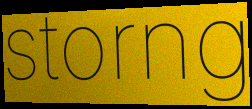
storng